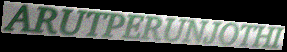
ARUTPERUNJOTHI